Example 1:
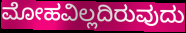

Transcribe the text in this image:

ಮೋಹವಿಲ್ಲದಿರುವುದು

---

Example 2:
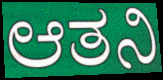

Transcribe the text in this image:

ಆತನಿ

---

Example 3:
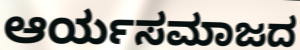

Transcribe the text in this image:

ಆರ್ಯಸಮಾಜದ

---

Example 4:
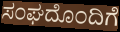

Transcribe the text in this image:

ಸಂಘದೊಂದಿಗೆ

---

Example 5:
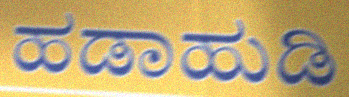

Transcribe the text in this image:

ಹಡಾಹುಡಿ